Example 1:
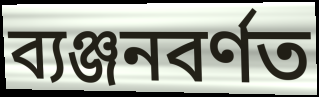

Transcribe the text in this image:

ব্যঞ্জনবৰ্ণত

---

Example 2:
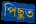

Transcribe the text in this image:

পিছুত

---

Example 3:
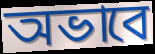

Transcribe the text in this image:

অভাবে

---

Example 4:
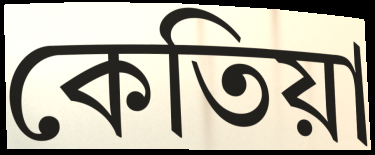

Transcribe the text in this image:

কেতিয়া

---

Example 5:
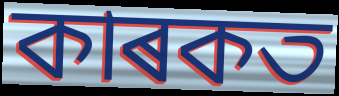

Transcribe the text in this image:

কাৰকত